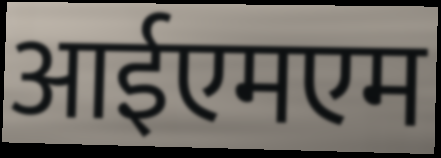
आईएमएम